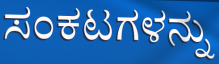
ಸಂಕಟಗಳನ್ನು